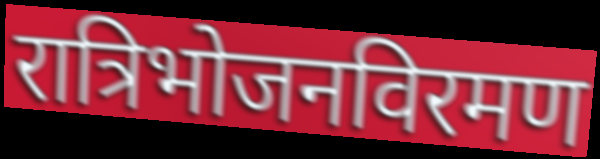
रात्रिभोजनविरमण